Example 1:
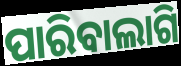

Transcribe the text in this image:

ପାରିବାଲାଗି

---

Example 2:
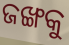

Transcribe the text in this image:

ଜଙ୍ଖକୁ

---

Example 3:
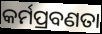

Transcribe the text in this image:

କର୍ମପ୍ରବଣତା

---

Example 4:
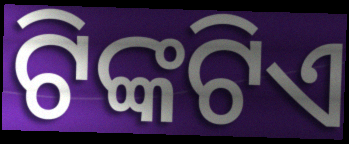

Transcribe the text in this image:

ଟିଙ୍କଟିଏ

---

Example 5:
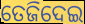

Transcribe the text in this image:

ତେଜିଦେଇ